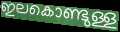
ഇലകൊണ്ടുള്ള